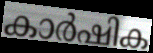
കാർഷിക